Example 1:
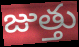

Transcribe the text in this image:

జుత్తు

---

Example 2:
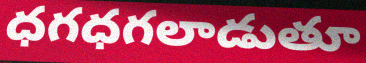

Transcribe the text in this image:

ధగధగలాడుతూ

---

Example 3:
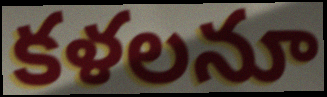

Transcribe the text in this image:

కళలనూ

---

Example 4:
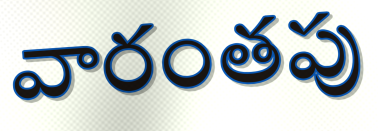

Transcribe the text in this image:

వారంతపు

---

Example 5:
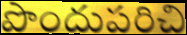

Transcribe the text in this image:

పొందుపరిచి